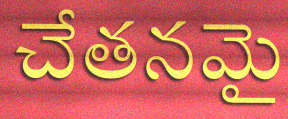
చేతనమై